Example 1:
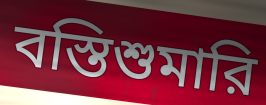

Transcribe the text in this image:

বস্তিশুমারি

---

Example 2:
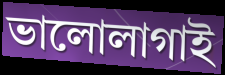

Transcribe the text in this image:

ভালোলাগাই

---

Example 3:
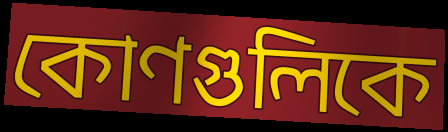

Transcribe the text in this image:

কোণগুলিকে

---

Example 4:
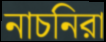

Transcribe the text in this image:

নাচনিরা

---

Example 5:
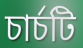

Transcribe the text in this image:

চার্চটি